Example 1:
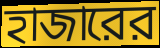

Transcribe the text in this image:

হাজারের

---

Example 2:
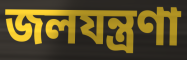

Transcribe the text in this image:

জলযন্ত্রণা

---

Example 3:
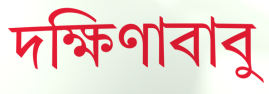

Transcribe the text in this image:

দক্ষিণাবাবু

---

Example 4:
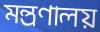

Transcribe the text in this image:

মন্ত্রণালয়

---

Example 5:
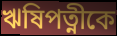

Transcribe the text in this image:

ঋষিপত্নীকে